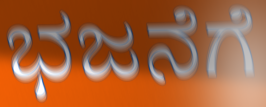
ಭಜನೆಗೆ